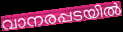
വാനരപ്പടയിൽ